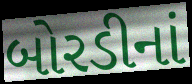
બોરડીનાં